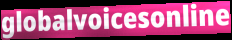
globalvoicesonline